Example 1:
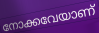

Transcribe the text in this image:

നോക്കവേയാണ്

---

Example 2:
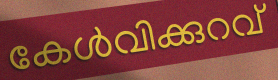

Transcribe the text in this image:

കേൾവിക്കുറവ്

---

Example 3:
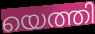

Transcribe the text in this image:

യെത്തി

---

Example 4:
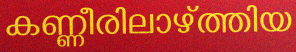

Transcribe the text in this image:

കണ്ണീരിലാഴ്ത്തിയ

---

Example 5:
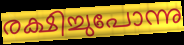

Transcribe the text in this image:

രക്ഷിച്ചുപോന്നു